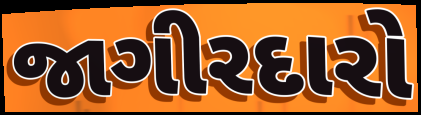
જાગીરદારો